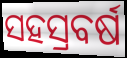
ସହସ୍ରବର୍ଷ